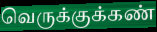
வெருக்குக்கண்